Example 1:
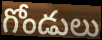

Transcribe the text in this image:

గోండులు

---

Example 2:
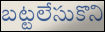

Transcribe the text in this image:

బట్టలేసుకొని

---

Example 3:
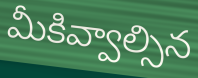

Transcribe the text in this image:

మీకివ్వాల్సిన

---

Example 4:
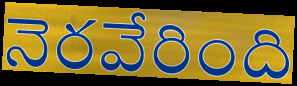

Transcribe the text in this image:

నెరవేరింది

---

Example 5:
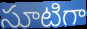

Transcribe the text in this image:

సూటిగా